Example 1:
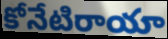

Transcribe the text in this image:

కోనేటిరాయా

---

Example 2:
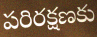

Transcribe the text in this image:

పరిరక్షణకు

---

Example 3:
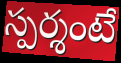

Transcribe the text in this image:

స్పర్శంటే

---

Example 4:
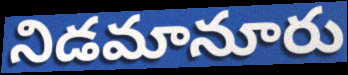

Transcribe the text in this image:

నిడమానూరు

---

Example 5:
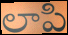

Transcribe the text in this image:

లాపి